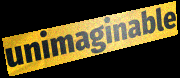
unimaginable